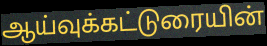
ஆய்வுக்கட்டுரையின்